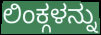
ಲಿಂಕ್ಗಳನ್ನು